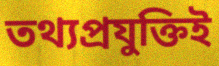
তথ্যপ্রযুক্তিই